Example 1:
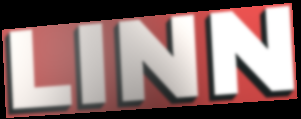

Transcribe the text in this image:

LINN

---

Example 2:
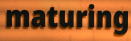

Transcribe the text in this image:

maturing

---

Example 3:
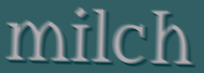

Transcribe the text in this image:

milch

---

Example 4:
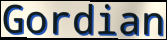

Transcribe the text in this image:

Gordian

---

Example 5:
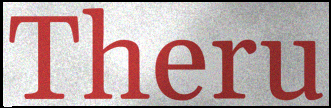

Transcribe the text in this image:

Theru